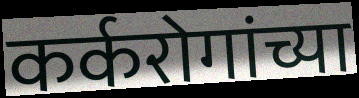
कर्करोगांच्या